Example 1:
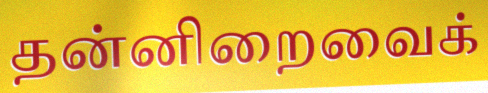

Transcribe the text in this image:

தன்னிறைவைக்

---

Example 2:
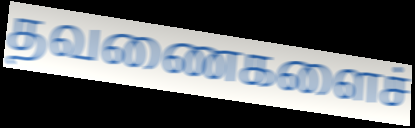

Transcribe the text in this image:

தவணைகளைச்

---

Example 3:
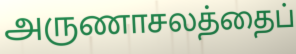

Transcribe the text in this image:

அருணாசலத்தைப்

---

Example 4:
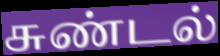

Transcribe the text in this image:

சுண்டல்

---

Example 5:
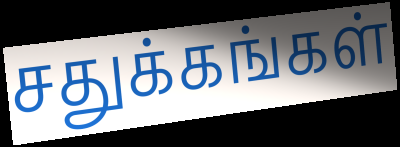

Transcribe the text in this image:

சதுக்கங்கள்